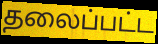
தலைப்பட்ட